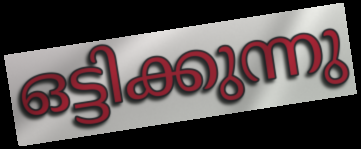
ഒട്ടിക്കുന്നു